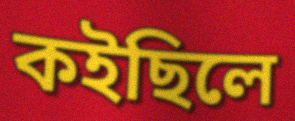
কইছিলে